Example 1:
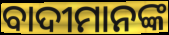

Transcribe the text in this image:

ବାଦୀମାନଙ୍କ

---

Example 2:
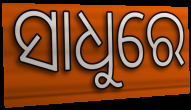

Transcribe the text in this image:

ସାଧୁରେ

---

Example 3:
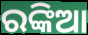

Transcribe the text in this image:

ରଙ୍କିଆ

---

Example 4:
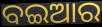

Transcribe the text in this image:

ବଇଆର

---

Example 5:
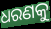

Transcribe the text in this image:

ଧରଣକୁ